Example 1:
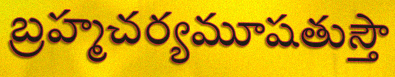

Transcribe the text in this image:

బ్రహ్మచర్యమూషతుస్తౌ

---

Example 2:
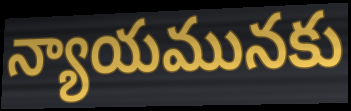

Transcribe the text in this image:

న్యాయమునకు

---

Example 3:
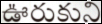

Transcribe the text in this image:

ఊరుకుని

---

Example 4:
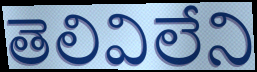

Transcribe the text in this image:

తెలివిలేని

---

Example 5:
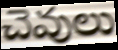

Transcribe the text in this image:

చెవులు